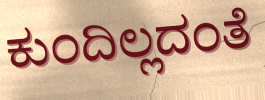
ಕುಂದಿಲ್ಲದಂತೆ